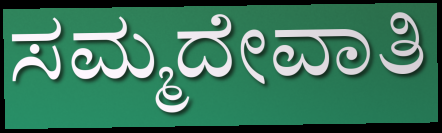
ಸಮ್ಮದೇವಾತಿ